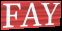
FAY